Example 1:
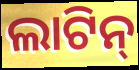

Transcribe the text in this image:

ଲାଟିନ୍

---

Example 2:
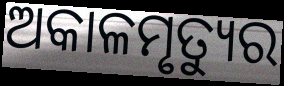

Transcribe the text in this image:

ଅକାଳମୃତ୍ୟୁର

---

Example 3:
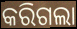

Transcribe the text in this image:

କରିଗଲା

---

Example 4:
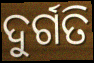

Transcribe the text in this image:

ଦୁର୍ଗତି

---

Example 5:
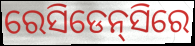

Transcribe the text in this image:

ରେସିଡେନ୍‌ସିରେ